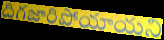
దిగజారిపోయాయని